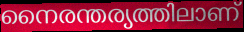
നൈരന്തര്യത്തിലാണ്